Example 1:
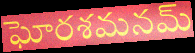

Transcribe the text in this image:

ఘోరశమనమ్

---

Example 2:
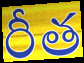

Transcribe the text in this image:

రీత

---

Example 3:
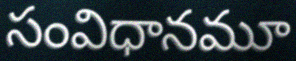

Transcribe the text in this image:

సంవిధానమూ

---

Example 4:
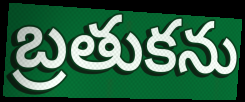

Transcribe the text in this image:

బ్రతుకను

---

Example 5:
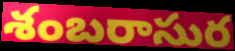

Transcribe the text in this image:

శంబరాసుర